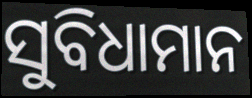
ସୁବିଧାମାନ